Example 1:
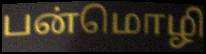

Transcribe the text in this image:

பன்மொழி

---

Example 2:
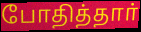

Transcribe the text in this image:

போதித்தார்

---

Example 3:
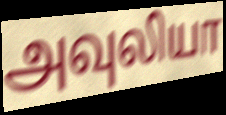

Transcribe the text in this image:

அவுலியா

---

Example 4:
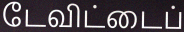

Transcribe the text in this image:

டேவிட்டைப்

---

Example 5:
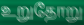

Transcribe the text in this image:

உறுதோறு